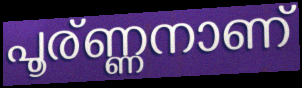
പൂര്ണ്ണനാണ്